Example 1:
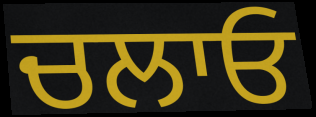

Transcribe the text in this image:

ਚਲਾਓ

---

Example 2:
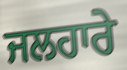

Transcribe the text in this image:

ਜਲਹਾਰੇ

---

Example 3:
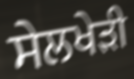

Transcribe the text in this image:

ਸੇਲਖੇੜੀ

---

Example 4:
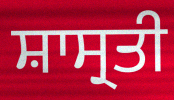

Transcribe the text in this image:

ਸ਼ਾਸ੍ਰਤੀ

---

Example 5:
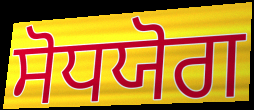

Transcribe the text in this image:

ਸੋਧਯੋਗ